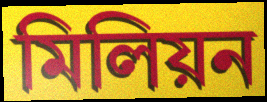
মিলিয়ন